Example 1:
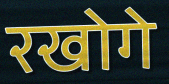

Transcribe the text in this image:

रखोगे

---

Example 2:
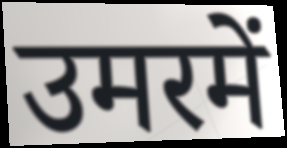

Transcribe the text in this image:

उमरमें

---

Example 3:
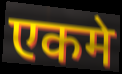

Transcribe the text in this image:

एकमे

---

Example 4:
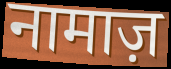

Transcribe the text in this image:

नामाज़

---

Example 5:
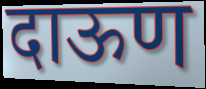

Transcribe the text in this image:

दाऊण